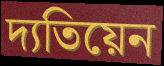
দ্যতিয়েন